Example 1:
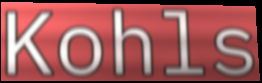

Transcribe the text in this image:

Kohls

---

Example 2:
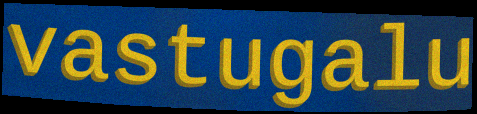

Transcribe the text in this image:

vastugalu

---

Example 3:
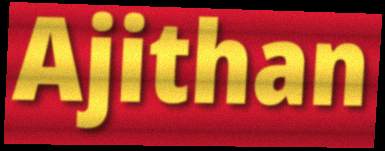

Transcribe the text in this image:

Ajithan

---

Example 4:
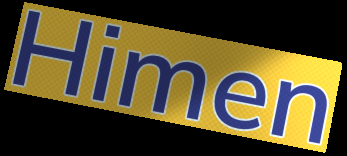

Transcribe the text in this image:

Himen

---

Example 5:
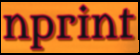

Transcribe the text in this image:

nprint